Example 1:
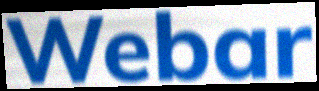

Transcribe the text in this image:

Webar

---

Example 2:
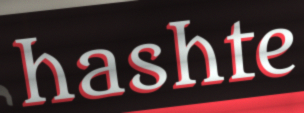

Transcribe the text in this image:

hashte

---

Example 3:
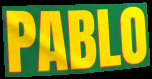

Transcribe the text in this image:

PABLO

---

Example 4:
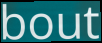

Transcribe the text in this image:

bout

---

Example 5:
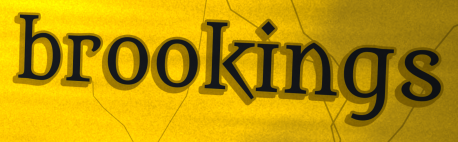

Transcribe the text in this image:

brookings